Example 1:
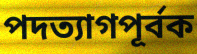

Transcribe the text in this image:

পদত্যাগপূর্বক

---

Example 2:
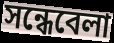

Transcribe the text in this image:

সন্ধেবেলা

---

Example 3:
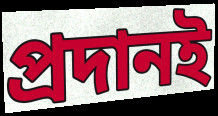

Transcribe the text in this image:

প্রদানই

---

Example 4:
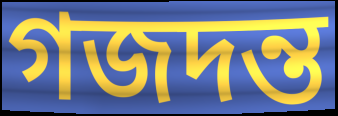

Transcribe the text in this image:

গজদন্ত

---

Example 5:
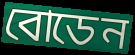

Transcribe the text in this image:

বোডেন